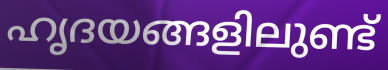
ഹൃദയങ്ങളിലുണ്ട്